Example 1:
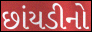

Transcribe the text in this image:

છાંયડીનો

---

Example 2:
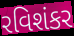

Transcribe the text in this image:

રવિશંકર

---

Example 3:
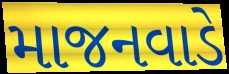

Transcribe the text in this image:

માજનવાડે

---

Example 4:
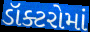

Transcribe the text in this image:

ડૉક્ટરોમાં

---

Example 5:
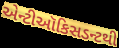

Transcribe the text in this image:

એન્ટીઑકિસડન્ટથી